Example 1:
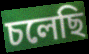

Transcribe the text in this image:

চলেছি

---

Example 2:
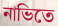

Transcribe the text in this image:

নাভিতে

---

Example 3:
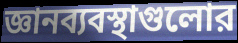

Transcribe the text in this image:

জ্ঞানব্যবস্থাগুলোর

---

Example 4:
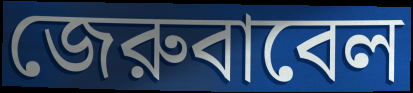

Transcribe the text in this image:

জেরুবাবেল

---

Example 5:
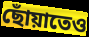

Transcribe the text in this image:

ছোঁয়াতেও